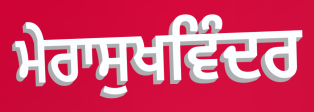
ਮੇਰਾਸੁਖਵਿੰਦਰ